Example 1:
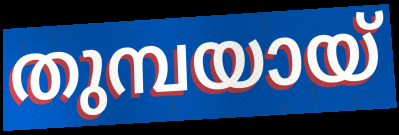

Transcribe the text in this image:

തുമ്പയായ്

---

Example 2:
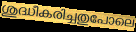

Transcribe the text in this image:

ശുദ്ധീകരിച്ചതുപോലെ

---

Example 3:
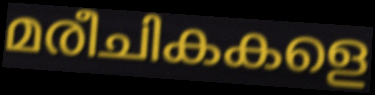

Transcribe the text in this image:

മരീചികകളെ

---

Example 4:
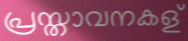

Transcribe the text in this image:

പ്രസ്താവനകള്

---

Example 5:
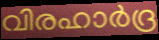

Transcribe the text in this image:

വിരഹാർദ്ര